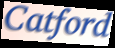
Catford